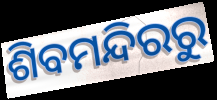
ଶିବମନ୍ଦିରରୁ